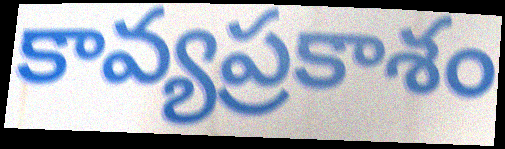
కావ్యప్రకాశం